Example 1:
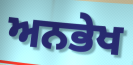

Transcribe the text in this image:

ਅਨਭੇਖ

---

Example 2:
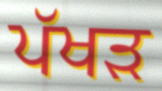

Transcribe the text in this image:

ਪੱਖੜ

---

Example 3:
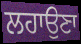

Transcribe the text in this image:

ਲਹਾਉਣਾ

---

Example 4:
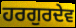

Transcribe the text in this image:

ਹਰਗੁਰਦੇਵ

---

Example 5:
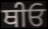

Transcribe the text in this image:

ਥੀਓ